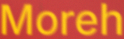
Moreh